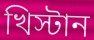
খিস্টান